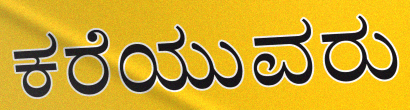
ಕರೆಯುವರು